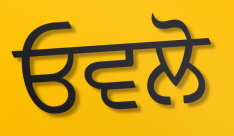
ਓਵਲੋ